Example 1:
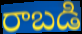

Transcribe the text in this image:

రాబడి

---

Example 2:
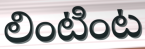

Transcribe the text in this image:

లింటింట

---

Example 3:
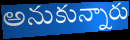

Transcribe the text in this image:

అనుకున్నారు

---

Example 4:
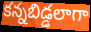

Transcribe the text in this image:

కన్నబిడ్డలాగా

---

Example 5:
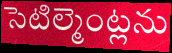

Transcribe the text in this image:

సెటిల్మెంట్లను